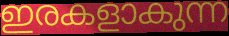
ഇരകളാകുന്ന